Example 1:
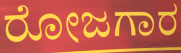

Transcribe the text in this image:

ರೋಜಗಾರ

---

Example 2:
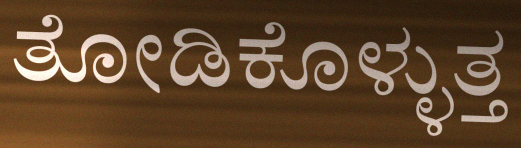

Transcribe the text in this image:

ತೋಡಿಕೊಳ್ಳುತ್ತ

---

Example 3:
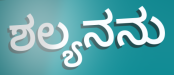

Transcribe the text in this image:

ಶಲ್ಯನನು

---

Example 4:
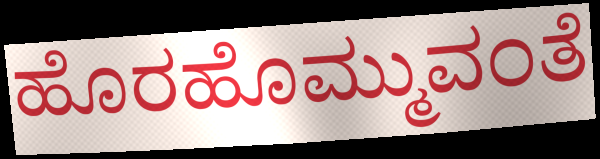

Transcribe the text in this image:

ಹೊರಹೊಮ್ಮುವಂತೆ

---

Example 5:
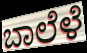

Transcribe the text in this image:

ಬಾಲೆಳೆ